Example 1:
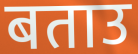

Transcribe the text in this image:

बताउ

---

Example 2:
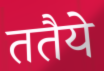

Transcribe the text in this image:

ततैये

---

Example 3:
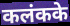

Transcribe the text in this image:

कलंकके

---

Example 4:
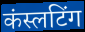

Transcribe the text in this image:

कंस्लटिंग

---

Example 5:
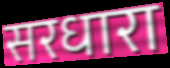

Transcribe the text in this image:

सरधारा